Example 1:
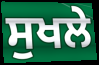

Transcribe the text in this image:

ਸੁਖਲੇ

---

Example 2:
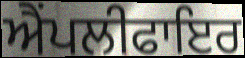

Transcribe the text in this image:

ਐਂਪਲੀਫਾਇਰ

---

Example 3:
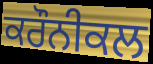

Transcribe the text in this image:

ਕਰੌਨੀਕਲ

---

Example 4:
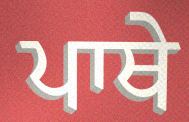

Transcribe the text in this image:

ਪਾਥੇ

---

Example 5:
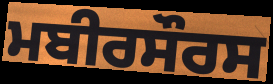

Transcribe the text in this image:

ਮਬੀਰਸੌਰਸ